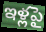
ఇళ్లపై